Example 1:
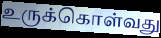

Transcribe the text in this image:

உருக்கொள்வது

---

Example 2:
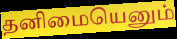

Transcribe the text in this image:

தனிமையெனும்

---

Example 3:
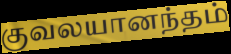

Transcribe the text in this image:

குவலயானந்தம்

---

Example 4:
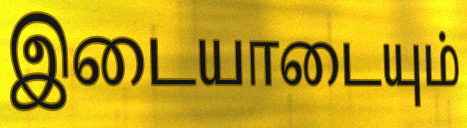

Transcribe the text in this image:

இடையாடையும்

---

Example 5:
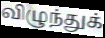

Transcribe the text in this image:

விழுந்துக்